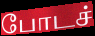
போடச்